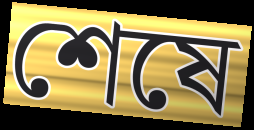
শেষে